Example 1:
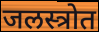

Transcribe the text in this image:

जलस्त्रोत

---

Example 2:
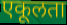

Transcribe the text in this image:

एकूलता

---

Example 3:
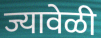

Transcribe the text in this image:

ज्यावेळी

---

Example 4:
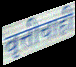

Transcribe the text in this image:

वृत्तीचाही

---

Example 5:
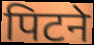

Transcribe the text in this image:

पिटने